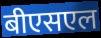
बीएसएल